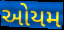
ઓયમ